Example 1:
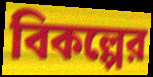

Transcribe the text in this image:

বিকল্পের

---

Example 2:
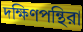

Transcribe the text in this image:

দক্ষিণপন্থিরা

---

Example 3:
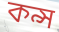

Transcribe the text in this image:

কন্স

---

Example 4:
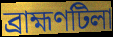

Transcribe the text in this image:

ব্রাহ্মণটিলা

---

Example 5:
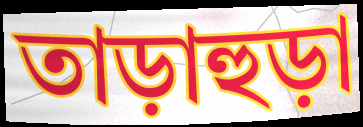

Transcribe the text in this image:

তাড়াহুড়া